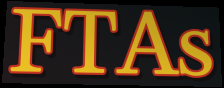
FTAs